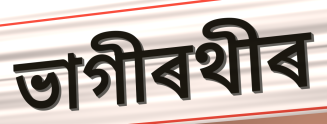
ভাগীৰথীৰ